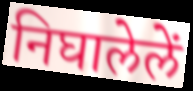
निघालेलें